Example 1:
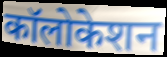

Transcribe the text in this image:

कॉलोकेशन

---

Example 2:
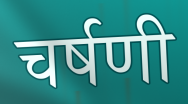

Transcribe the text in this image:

चर्षणी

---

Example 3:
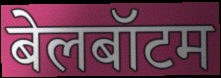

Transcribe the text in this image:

बेलबॉटम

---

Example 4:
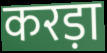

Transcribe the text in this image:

करड़ा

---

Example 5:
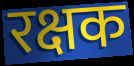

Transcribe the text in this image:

रक्षक